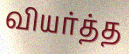
வியர்த்த